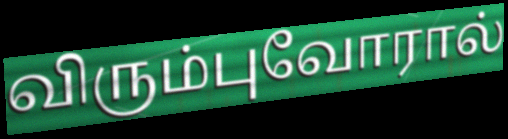
விரும்புவோரால்